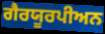
ਗੈਰਯੂਰਪੀਅਨ